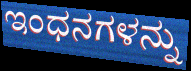
ಇಂಧನಗಳನ್ನು